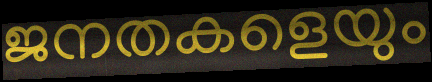
ജനതകളെയും